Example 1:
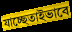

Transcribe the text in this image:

যাচ্ছেতাইভাবে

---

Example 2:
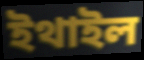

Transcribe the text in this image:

ইথাইল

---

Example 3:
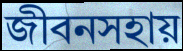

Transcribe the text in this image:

জীবনসহায়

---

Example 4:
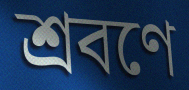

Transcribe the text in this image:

শ্রবণে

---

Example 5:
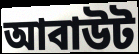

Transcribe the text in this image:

আবাউট